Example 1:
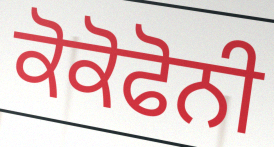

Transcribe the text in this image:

ਕੋਕੋਫੋਨੀ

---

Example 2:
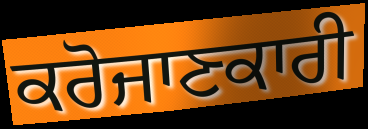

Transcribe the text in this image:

ਕਰੋਜਾਣਕਾਰੀ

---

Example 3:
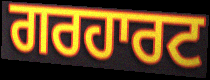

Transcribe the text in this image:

ਗਰਹਾਰਟ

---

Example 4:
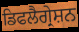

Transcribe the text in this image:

ਡਿਫਲੈਗ੍ਰੇਸ਼ਨ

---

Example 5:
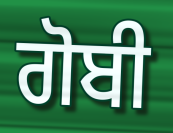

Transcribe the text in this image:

ਗੋਬੀ